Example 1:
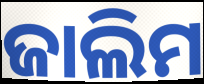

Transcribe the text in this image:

ଜାଲିମ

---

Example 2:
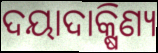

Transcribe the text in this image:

ଦୟାଦାକ୍ଷିଣ୍ୟ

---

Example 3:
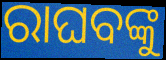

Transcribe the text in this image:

ରାଘବଙ୍କୁ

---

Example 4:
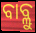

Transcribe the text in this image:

ବାବ୍ଲୁ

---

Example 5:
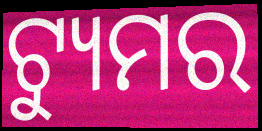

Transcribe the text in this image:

ଟ୍ୟୁମର